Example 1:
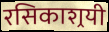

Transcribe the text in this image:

रसिकाश्रयी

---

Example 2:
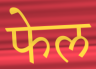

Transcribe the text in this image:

फेल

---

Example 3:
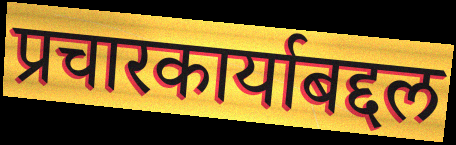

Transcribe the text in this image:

प्रचारकार्याबद्दल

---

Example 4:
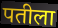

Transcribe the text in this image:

पतीला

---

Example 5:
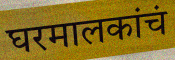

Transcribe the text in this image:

घरमालकांचं